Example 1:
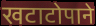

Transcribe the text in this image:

खटाटोपाने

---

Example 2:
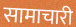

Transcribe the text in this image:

सामाचारी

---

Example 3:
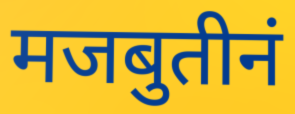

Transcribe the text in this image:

मजबुतीनं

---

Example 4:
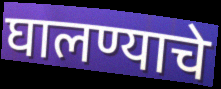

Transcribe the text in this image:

घालण्याचे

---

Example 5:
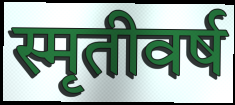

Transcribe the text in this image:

स्मृतीवर्ष